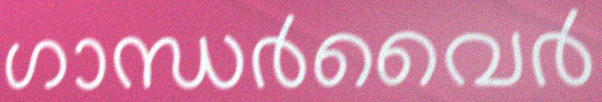
ഗാന്ധർവൈർ